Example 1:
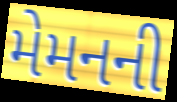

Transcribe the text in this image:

મેમનની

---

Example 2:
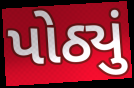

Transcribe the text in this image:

પોઠ્યું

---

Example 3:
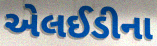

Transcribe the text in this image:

એલઈડીના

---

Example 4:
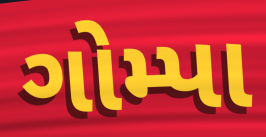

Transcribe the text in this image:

ગોમ્પા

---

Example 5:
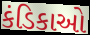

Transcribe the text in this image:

કંડિકાઓ